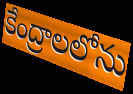
కేంద్రాలలోను